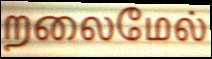
றலைமேல்